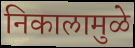
निकालामुळे